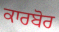
ਕਾਰਬੋਰ